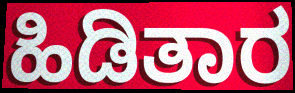
ಹಿಡಿತಾರ